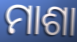
ମାଶା